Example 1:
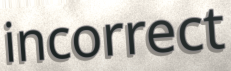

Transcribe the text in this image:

incorrect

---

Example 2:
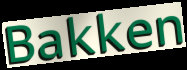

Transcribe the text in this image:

Bakken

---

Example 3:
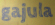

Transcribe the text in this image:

gajula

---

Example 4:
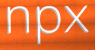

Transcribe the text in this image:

npx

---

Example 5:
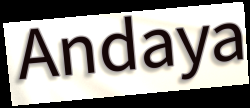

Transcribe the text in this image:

Andaya